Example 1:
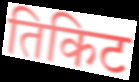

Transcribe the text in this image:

तिकिट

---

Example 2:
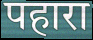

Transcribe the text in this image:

पहारा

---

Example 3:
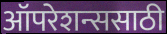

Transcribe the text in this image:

ऑपरेशन्ससाठी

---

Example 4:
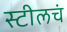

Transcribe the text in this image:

स्टीलचं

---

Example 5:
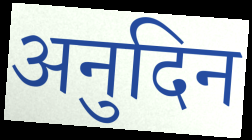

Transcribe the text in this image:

अनुदिन